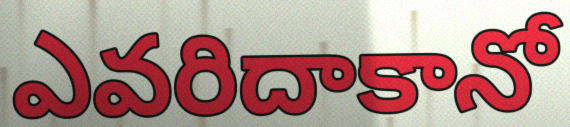
ఎవరిదాకానో